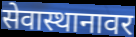
सेवास्थानावर